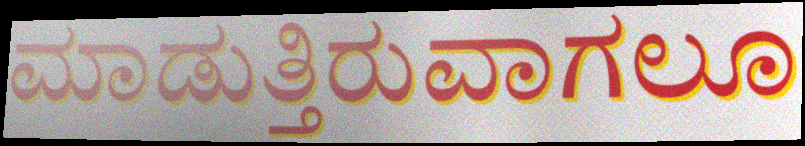
ಮಾಡುತ್ತಿರುವಾಗಲೂ